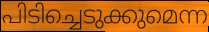
പിടിച്ചെടുക്കുമെന്ന